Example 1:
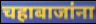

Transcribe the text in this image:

चहाबाजांना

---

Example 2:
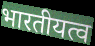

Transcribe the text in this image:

भारतीयत्व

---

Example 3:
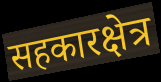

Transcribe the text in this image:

सहकारक्षेत्र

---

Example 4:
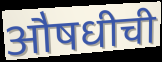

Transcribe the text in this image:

औषधीची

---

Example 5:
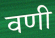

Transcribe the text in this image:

वणी